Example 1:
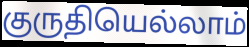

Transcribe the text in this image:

குருதியெல்லாம்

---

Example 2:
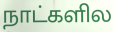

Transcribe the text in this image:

நாட்களில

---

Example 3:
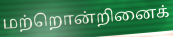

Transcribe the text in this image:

மற்றொன்றினைக்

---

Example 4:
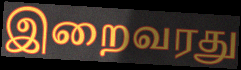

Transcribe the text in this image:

இறைவரது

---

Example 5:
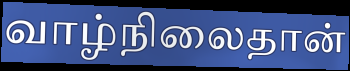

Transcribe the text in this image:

வாழ்நிலைதான்